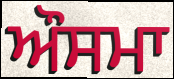
ਔਸਮਾ